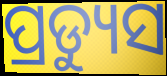
ପ୍ରଡ୍ୟୁସ